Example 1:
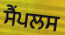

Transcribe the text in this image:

ਸੈਂਪਲਸ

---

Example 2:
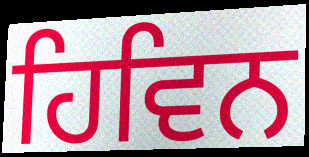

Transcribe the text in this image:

ਹਿਵਿਨ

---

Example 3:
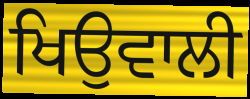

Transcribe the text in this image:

ਖਿਉਵਾਲੀ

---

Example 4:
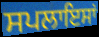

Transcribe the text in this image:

ਸਪਲਾਇਸਾਂ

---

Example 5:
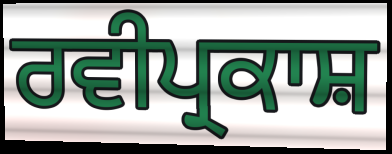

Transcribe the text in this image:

ਰਵੀਪ੍ਰਕਾਸ਼